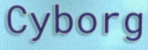
Cyborg